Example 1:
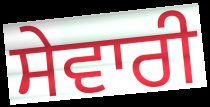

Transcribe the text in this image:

ਸੇਵਾਰੀ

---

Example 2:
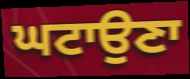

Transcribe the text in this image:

ਘਟਾਉਣਾ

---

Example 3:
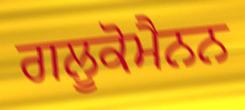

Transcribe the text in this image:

ਗਲੂਕੋਮੈਨਨ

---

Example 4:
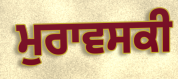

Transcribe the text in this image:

ਮੁਰਾਵਸਕੀ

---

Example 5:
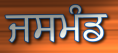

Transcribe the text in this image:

ਜਸਮੰਡ